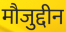
मौजुद्दीन